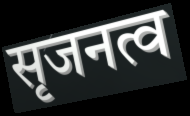
सृजनत्व